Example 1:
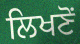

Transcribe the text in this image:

ਲਿਖਣੋਂ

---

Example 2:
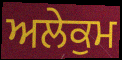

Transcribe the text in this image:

ਅਲੇਕੁਮ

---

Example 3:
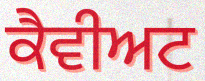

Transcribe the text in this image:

ਕੈਵੀਅਟ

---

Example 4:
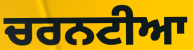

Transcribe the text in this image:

ਚਰਨਟੀਆ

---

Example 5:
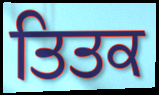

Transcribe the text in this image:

ਤਿਤਕ